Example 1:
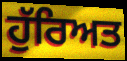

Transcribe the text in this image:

ਹੁੱਰਿਅਤ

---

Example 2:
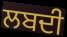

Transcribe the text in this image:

ਲਬਦੀ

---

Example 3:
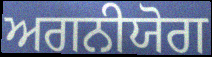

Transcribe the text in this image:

ਅਗਨੀਯੋਗ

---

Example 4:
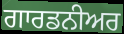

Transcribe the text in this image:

ਗਾਰਡਨੀਅਰ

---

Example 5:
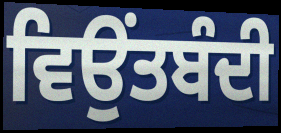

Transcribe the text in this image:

ਵਿਉਂਤਬੰਦੀ